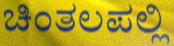
ಚಿಂತಲಪಲ್ಲಿ